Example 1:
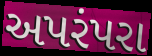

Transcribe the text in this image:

અપરંપરા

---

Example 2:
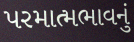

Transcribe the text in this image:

પરમાત્મભાવનું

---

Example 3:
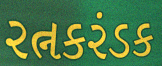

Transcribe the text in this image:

રત્નકરંડક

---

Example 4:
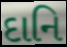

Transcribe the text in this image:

દાનિ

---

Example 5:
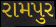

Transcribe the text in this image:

રામપુર